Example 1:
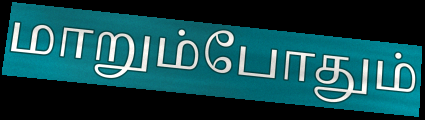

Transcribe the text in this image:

மாறும்போதும்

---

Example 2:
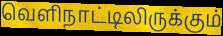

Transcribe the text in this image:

வெளிநாட்டிலிருக்கும்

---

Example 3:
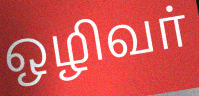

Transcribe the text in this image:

ஒழிவர்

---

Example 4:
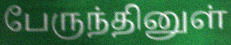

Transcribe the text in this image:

பேருந்தினுள்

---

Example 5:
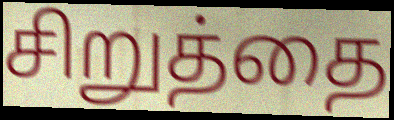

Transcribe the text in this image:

சிறுத்தை